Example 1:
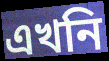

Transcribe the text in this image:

এখনি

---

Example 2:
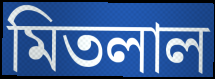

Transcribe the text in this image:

মিতলাল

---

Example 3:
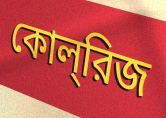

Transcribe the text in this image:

কোল্‌রিজ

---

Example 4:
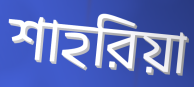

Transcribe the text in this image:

শাহরিয়া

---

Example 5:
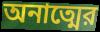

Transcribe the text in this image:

অনাত্মের